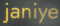
janiye